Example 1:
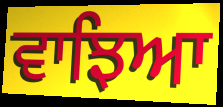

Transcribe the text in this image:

ਵਾਝਿਆ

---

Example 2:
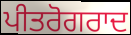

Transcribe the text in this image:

ਪੀਤਰੋਗਰਾਦ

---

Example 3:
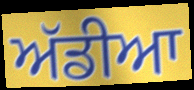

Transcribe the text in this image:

ਅੱਡੀਆ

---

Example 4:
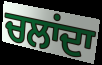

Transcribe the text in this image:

ਚਲਾਂਦਾ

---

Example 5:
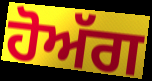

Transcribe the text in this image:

ਹੋਅੱਗ